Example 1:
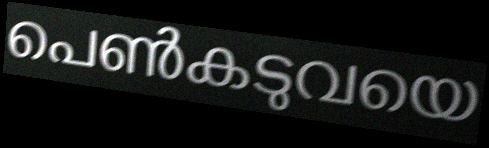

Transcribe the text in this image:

പെൺകടുവയെ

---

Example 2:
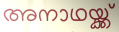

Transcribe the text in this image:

അനാഥയ്ക്ക്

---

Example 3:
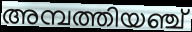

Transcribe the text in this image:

അമ്പത്തിയഞ്ച്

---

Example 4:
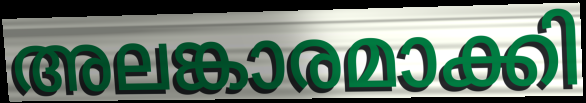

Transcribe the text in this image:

അലങ്കാരമാക്കി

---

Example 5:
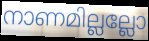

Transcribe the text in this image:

നാണമില്ലല്ലോ